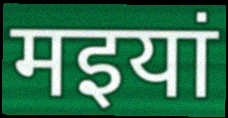
मइयां